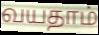
வயதாம்